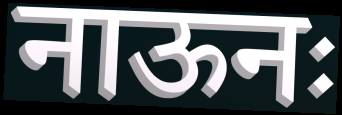
नाऊनः